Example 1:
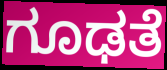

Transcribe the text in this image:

ಗೂಢತೆ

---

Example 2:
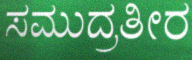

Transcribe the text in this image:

ಸಮುದ್ರತೀರ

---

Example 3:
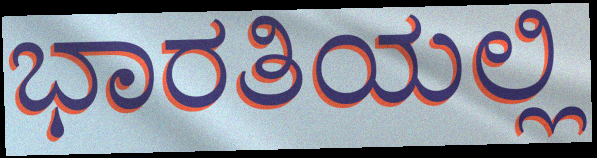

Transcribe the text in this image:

ಭಾರತಿಯಲ್ಲಿ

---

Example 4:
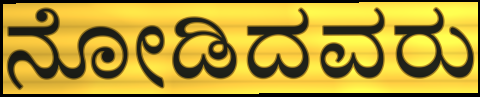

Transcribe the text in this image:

ನೋಡಿದವರು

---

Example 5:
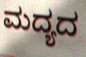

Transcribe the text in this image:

ಮದ್ಯದ